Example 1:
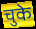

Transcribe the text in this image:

चुके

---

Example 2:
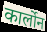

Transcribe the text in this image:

कार्लोन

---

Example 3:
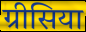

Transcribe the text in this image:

ग्रीसिया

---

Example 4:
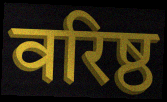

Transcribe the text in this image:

वरिष्ठ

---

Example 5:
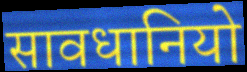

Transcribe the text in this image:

सावधानियो